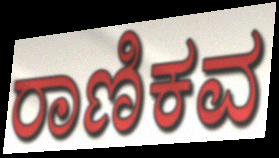
ರಾಣಿಕವ